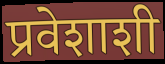
प्रवेशाशी